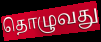
தொழுவது